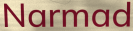
Narmad